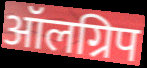
ऑलग्रिप